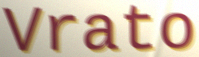
Vrato